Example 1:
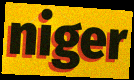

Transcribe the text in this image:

niger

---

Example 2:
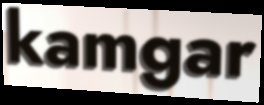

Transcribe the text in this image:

kamgar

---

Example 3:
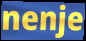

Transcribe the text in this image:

nenje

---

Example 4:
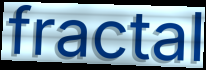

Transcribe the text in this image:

fractal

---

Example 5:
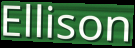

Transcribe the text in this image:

Ellison